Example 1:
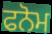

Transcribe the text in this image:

ਫਨੋਮ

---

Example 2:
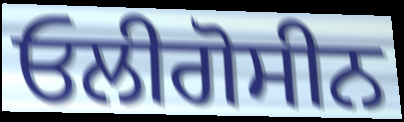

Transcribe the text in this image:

ਓਲੀਗੋਸੀਨ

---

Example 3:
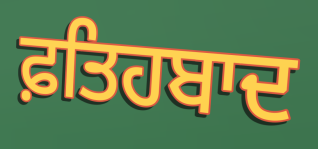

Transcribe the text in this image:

ਫ਼ਤਿਹਬਾਦ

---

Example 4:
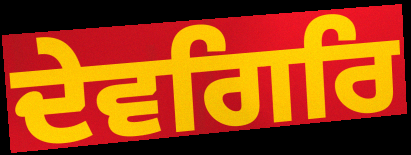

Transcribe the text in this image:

ਦੇਵਗਿਰਿ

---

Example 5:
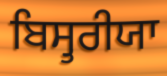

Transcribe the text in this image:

ਬਿਸ੍ਤਰੀਯਾ